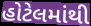
હોટેલમાંથી